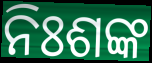
ନିଃଶଙ୍କ